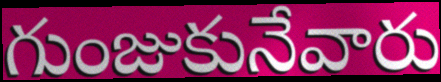
గుంజుకునేవారు